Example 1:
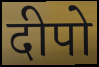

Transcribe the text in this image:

दीपो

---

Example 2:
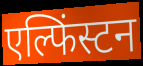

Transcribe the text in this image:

एल्फिंस्टन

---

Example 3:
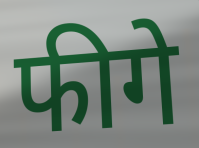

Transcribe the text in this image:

फीगे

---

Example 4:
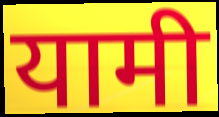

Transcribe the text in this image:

यामी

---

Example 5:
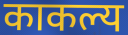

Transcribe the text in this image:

काकल्य